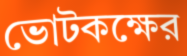
ভোটকক্ষের